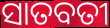
ସାତବତୀ